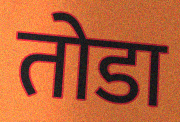
तोडा